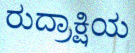
ರುದ್ರಾಕ್ಷಿಯ